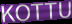
KOTTU